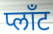
प्लाँट